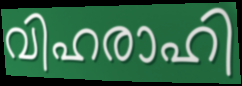
വിഹരാഹി